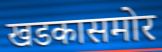
खडकासमोर